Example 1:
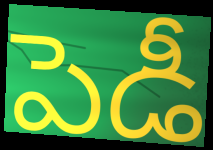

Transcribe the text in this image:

పెడీ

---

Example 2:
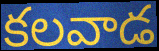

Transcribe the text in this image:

కలవాడ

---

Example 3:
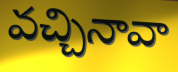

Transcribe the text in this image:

వచ్చినావా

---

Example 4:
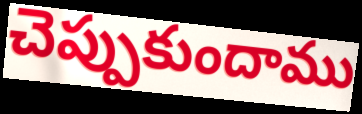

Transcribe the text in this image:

చెప్పుకుందాము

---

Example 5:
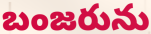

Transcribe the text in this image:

బంజరును